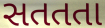
સતતતા